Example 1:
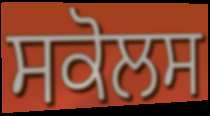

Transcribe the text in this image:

ਸਕੋਲਸ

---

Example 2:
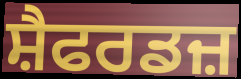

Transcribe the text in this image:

ਸ਼ੈਫਰਡਜ਼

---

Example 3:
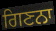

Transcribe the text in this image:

ਗਿਣਨਾ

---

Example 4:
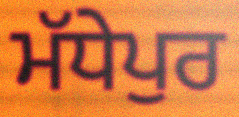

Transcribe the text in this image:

ਮੱਧੇਪੁਰ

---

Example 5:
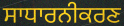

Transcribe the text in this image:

ਸਾਧਾਰਨੀਕਰਣ